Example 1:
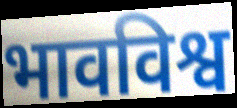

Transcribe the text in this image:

भावविश्व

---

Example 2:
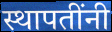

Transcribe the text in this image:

स्थापतींनी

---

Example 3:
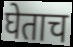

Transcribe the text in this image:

घेताच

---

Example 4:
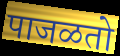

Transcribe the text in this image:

पाजळतो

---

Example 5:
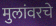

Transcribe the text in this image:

मुलांवरचे